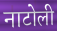
नाटोली